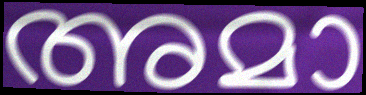
അമാ